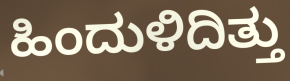
ಹಿಂದುಳಿದಿತ್ತು